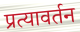
प्रत्यावर्तन